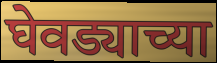
घेवड्याच्या